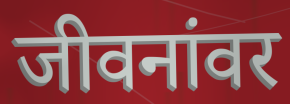
जीवनांवर